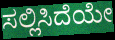
ಸಲ್ಲಿಸಿದೆಯೇ